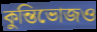
কুন্তিভোজও